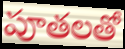
పూతలతో